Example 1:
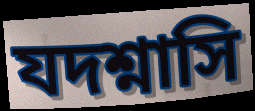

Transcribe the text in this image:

যদশ্নাসি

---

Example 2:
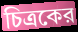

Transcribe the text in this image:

চিত্রকের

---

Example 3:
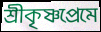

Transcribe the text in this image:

শ্রীকৃষ্ণপ্রেমে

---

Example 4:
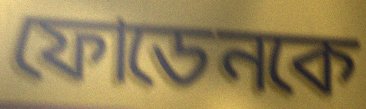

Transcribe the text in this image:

ফোডেনকে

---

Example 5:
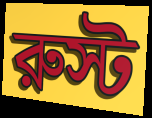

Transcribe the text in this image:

রুস্ট